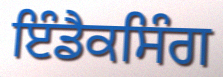
ਇੰਡੈਕਸਿੰਗ